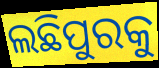
ଲଛିପୁରକୁ